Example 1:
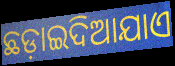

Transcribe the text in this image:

ଛଡ଼ାଇଦିଆଯାଏ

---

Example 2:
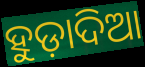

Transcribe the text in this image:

ହୁଡ଼ାଦିଆ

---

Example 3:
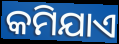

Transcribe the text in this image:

କମିଯାଏ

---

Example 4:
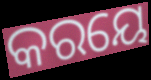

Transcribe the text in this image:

କରୟେ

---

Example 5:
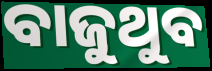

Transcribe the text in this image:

ବାଜୁଥୁବ